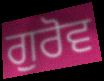
ਗੁਰੋਵ